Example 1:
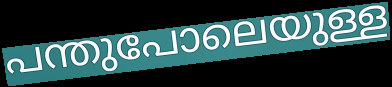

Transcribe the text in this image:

പന്തുപോലെയുള്ള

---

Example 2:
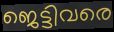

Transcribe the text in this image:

ജെട്ടിവരെ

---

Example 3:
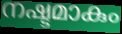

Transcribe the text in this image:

നഷ്ടമാകും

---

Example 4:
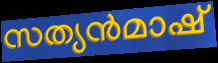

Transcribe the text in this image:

സത്യൻമാഷ്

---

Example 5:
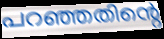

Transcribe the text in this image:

പറഞ്ഞതിന്റെ